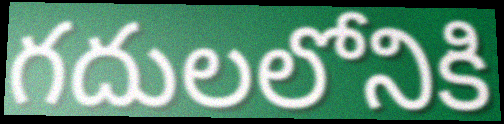
గదులలోనికి